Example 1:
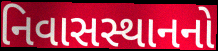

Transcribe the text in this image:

નિવાસસ્થાનનો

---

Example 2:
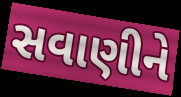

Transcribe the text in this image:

સવાણીને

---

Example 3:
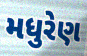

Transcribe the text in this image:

મધુરેણ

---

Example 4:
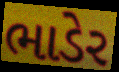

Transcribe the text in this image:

ભાડેર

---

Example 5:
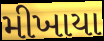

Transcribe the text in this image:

મીખાયા